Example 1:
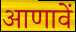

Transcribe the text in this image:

आणावें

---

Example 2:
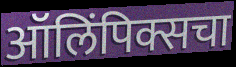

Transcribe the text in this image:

ऑलिंपिक्सचा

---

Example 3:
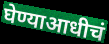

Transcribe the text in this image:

घेण्याआधीचं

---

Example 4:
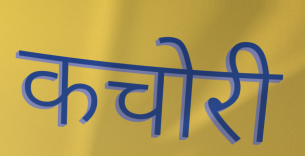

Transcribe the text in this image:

कचोरी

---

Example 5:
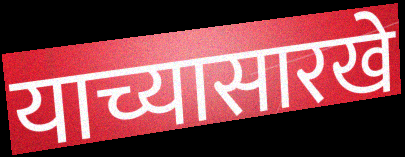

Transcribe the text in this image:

याच्यासारखे